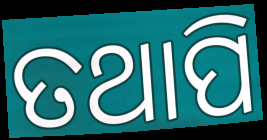
ତଥାପି